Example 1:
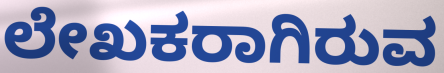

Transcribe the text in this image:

ಲೇಖಕರಾಗಿರುವ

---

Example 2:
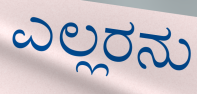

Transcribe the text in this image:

ಎಲ್ಲರನು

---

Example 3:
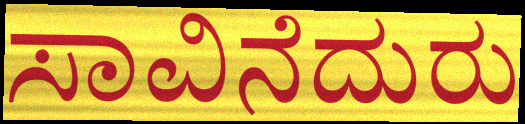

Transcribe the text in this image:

ಸಾವಿನೆದುರು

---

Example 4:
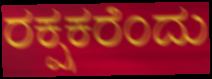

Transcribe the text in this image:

ರಕ್ಷಕರೆಂದು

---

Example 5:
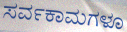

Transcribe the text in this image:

ಸರ್ವಕಾಮಗಳೂ